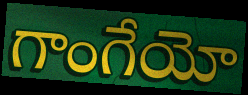
గాంగేయో